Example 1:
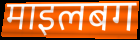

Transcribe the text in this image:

माइलबग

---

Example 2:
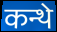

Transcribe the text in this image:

कन्थे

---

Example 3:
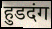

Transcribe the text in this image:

हुडदंग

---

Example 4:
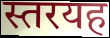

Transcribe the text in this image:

स्तरयह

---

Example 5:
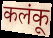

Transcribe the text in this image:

कलंकू